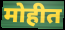
मोहीत